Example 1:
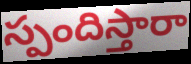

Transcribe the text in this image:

స్పందిస్తారా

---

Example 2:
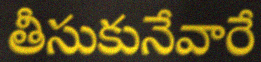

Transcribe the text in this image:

తీసుకునేవారే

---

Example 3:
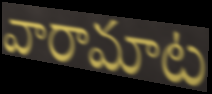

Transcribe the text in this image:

వారామాట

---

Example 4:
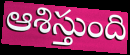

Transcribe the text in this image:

ఆశిస్తుంది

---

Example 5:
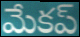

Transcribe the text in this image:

మేకప్